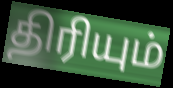
திரியும்